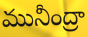
మునీంద్రా